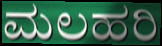
ಮಲಹರಿ